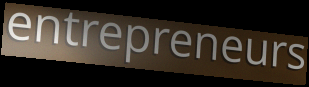
entrepreneurs